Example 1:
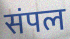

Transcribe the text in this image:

संपल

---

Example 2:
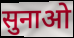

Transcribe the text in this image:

सुनाओ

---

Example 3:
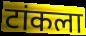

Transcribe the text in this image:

टांकला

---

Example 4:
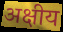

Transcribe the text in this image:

अक्षीय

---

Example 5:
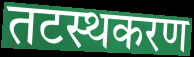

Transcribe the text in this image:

तटस्थकरण